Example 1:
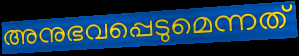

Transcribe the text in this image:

അനുഭവപ്പെടുമെന്നത്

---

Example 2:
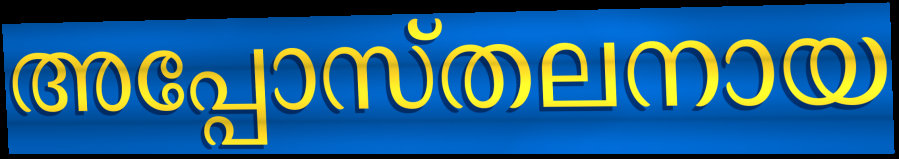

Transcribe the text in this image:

അപ്പോസ്തലനായ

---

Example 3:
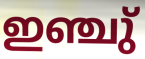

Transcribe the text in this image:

ഇഞ്ചു്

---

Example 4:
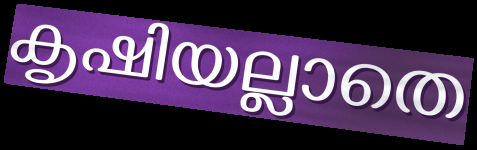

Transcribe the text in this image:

കൃഷിയല്ലാതെ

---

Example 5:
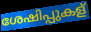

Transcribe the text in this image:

ശേഷിപ്പുകള്